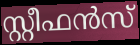
സ്റ്റീഫൻസ്